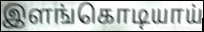
இளங்கொடியாய்